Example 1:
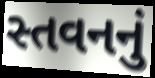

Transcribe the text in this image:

સ્તવનનું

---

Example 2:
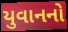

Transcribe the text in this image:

યુવાનનો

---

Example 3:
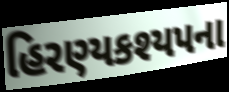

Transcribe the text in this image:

હિરણ્યકશ્યપના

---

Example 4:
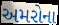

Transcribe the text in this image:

અમરોના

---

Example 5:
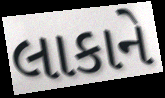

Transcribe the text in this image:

લાકાને